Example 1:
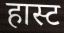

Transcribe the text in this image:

हास्ट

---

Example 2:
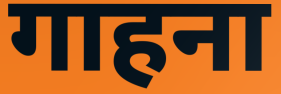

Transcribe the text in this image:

गाहना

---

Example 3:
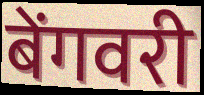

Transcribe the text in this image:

बेंगवरी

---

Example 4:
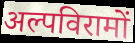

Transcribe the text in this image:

अल्पविरामों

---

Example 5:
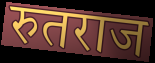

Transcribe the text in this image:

रुतराज